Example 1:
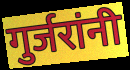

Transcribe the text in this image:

गुर्जरांनी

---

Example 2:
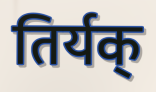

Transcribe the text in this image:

तिर्यक्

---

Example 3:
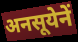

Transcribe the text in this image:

अनसूयेनें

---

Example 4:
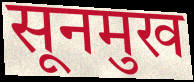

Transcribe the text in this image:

सूनमुख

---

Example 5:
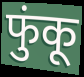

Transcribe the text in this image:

फुंकू